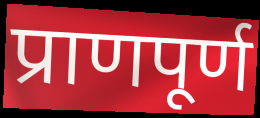
प्राणपूर्ण